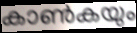
കാൺകയും